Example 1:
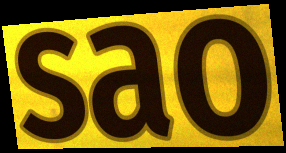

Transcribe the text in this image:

sao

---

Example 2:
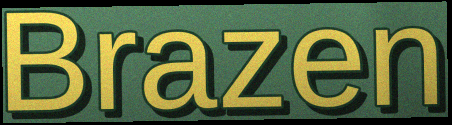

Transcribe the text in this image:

Brazen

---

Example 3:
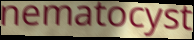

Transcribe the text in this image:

nematocyst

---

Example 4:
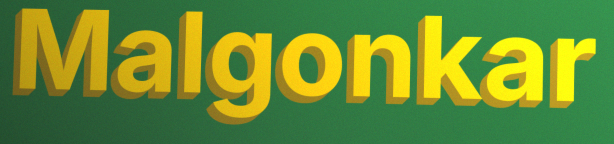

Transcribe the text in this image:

Malgonkar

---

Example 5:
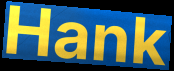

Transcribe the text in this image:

Hank